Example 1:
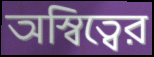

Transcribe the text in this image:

অস্বিত্বের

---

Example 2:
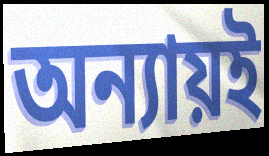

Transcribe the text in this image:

অন্যায়ই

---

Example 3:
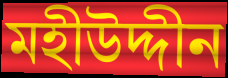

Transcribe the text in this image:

মহীউদ্দীন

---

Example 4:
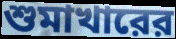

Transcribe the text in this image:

শুমাখারের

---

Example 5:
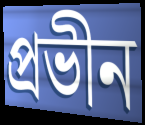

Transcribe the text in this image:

প্রভীন